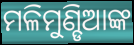
ମଳିମୁଣ୍ଡିଆଙ୍କ